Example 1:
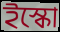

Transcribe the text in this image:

ইস্কো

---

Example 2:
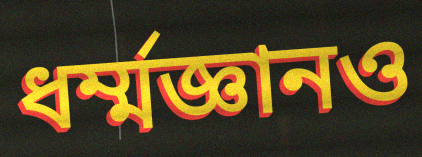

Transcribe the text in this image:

ধর্ম্মজ্ঞানও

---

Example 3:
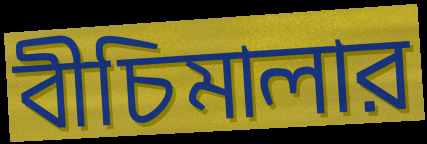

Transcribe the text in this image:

বীচিমালার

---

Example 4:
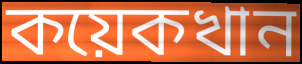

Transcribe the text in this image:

কয়েকখান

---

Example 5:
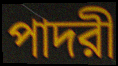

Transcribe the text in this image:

পাদরী